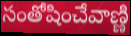
సంతోషించేవాణ్ణి